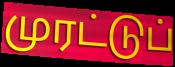
முரட்டுப்